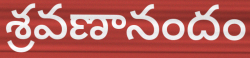
శ్రవణానందం